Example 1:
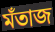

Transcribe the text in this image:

মঁতাজ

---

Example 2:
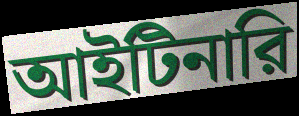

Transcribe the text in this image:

আইটিনারি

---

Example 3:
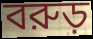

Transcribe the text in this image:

বরুড়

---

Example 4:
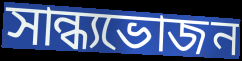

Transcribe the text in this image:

সান্ধ্যভোজন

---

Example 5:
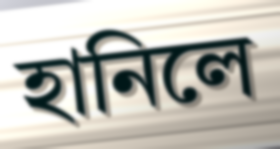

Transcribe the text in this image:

হানিলে